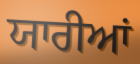
ਯਾਰੀਆਂ